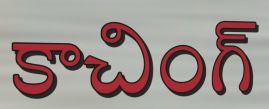
కాచింగ్